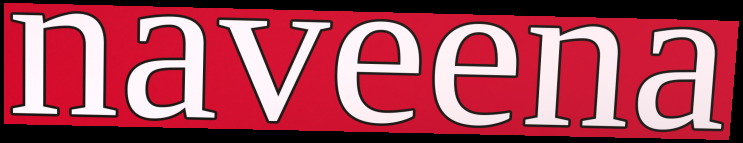
naveena